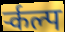
र्र्कल्प